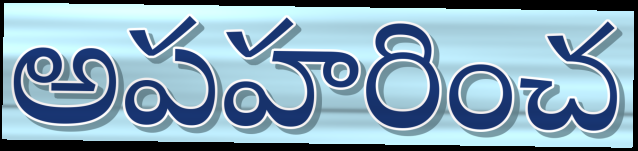
అపహరించ